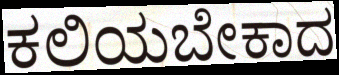
ಕಲಿಯಬೇಕಾದ